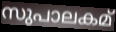
സുപാലകമ്